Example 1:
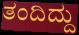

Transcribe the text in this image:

ತಂದಿದ್ದು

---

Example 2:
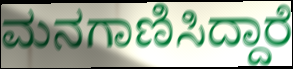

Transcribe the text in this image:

ಮನಗಾಣಿಸಿದ್ದಾರೆ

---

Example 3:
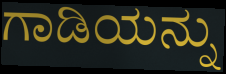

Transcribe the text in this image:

ಗಾಡಿಯನ್ನು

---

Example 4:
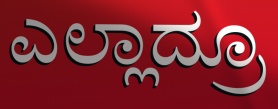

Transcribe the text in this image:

ಎಲ್ಲಾದ್ರೂ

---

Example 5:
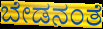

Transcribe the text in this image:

ಬೇಡನಂತೆ